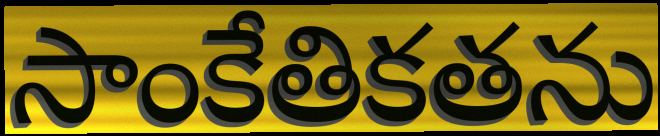
సాంకేతికతను